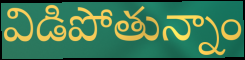
విడిపోతున్నాం